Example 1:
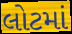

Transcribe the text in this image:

લોટમાં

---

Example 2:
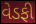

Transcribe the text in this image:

વેડફી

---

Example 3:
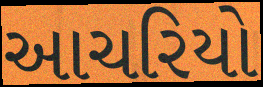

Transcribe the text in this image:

આચરિયો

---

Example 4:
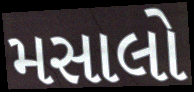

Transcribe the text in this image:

મસાલો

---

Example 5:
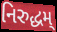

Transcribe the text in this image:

નિરુદ્ધમ્